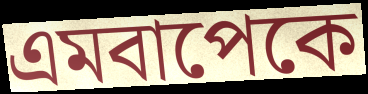
এমবাপেকে